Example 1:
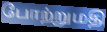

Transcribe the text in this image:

போற்றுமதி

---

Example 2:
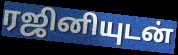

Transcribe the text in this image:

ரஜினியுடன்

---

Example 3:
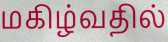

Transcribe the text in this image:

மகிழ்வதில்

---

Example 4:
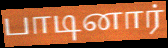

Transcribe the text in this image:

பாடினார்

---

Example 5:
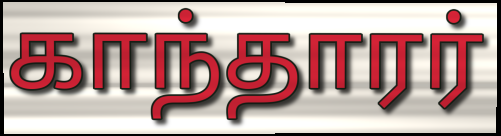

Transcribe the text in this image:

காந்தாரர்